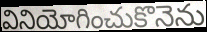
వినియోగించుకొనెను